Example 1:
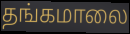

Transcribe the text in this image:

தங்கமாலை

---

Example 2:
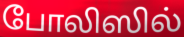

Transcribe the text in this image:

போலிஸில்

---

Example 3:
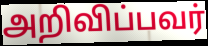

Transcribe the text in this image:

அறிவிப்பவர்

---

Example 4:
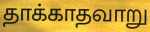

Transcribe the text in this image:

தாக்காதவாறு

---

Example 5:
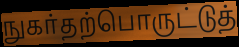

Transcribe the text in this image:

நுகர்தற்பொருட்டுத்